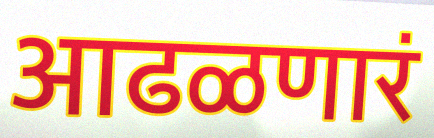
आढळणारं